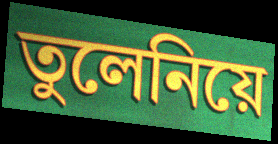
তুলেনিয়ে